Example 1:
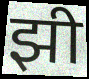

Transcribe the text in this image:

झी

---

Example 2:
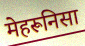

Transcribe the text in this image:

मेहरूनिसा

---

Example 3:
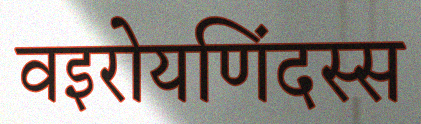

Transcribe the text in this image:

वइरोयणिंदस्स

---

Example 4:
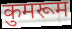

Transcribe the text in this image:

कुमरूम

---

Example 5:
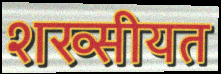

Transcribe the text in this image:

शख्सीयत